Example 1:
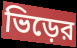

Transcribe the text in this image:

ভিড়ের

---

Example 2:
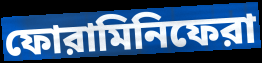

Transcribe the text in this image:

ফোরামিনিফেরা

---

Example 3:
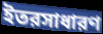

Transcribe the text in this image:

ইতরসাধারণ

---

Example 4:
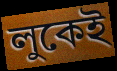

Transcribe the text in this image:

লুকেই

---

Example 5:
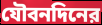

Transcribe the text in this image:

যৌবনদিনের